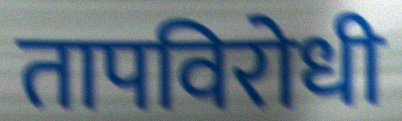
तापविरोधी